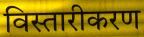
विस्तारीकरण